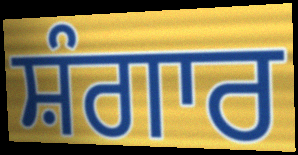
ਸ਼ੰਗਾਰ